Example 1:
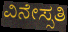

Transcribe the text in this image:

ವಿನೇಸ್ಸತಿ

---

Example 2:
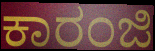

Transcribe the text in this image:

ಕಾರಂಜಿ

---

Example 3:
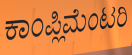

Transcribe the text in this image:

ಕಾಂಪ್ಲಿಮೆಂಟರಿ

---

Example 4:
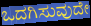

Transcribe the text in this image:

ಒದಗಿಸುವುದೇ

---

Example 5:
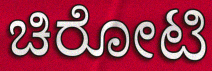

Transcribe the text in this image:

ಚಿರೋಟಿ